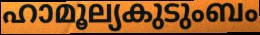
ഹാമൂല്യകുടുംബം